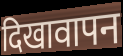
दिखावापन